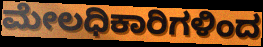
ಮೇಲಧಿಕಾರಿಗಳಿಂದ